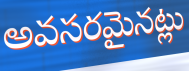
అవసరమైనట్లు